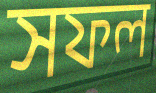
সফল